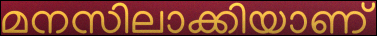
മനസിലാക്കിയാണ്